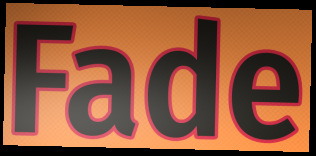
Fade